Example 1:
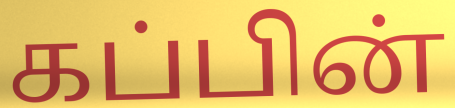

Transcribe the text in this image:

கப்பின்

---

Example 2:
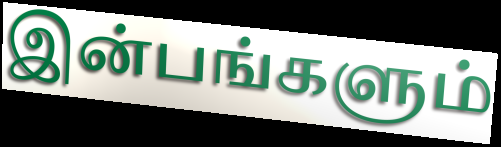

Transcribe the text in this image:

இன்பங்களும்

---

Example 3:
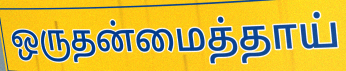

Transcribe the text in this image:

ஒருதன்மைத்தாய்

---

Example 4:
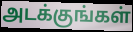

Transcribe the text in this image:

அடக்குங்கள்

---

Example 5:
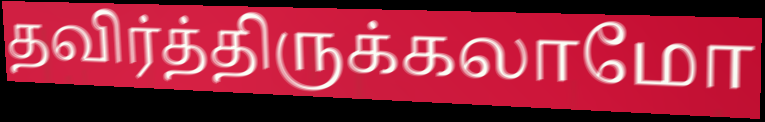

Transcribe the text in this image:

தவிர்த்திருக்கலாமோ